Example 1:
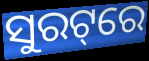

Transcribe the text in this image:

ସୁରଟ୍‌ରେ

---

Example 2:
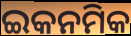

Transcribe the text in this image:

ଇକନମିକ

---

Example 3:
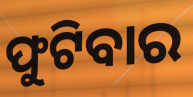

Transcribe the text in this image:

ଫୁଟିବାର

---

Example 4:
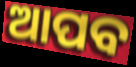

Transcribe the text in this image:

ଆପବ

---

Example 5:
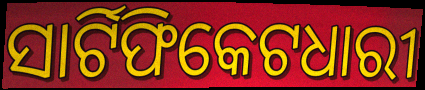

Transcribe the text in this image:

ସାର୍ଟିଫିକେଟଧାରୀ